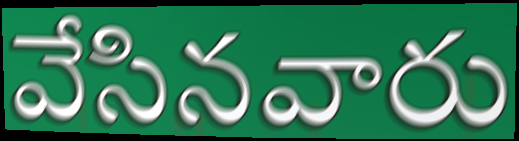
వేసినవారు